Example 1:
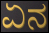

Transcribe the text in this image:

ಏನ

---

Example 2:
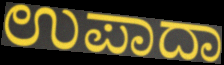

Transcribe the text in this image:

ಉಪಾದಾ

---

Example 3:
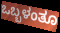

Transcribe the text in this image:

ಒಬ್ಬಳಂತೂ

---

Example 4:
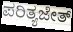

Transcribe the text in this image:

ಪರಿತ್ಯಜೇತ್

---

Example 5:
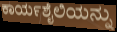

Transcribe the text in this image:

ಕಾರ್ಯಶೈಲಿಯನ್ನು